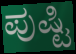
ಪುಷ್ಟಿ